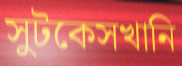
সুটকেসখানি